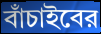
বাঁচাইবের